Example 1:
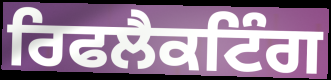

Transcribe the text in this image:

ਰਿਫਲੈਕਟਿੰਗ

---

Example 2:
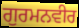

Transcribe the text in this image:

ਗੁਰਮਨਵੀਰ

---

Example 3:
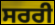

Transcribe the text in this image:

ਸਰਰੀ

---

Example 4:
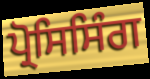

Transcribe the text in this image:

ਪ੍ਰੋਸਿਸਿੰਗ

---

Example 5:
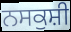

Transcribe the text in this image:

ਨਸਕੁਸ਼ੀ